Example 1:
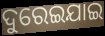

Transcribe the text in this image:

ଦୁରେଇଯାଇ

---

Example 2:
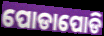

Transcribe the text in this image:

ପୋଡାପୋଡି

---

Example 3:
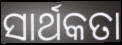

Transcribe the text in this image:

ସାର୍ଥକତା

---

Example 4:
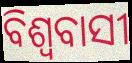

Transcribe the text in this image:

ବିଶ୍ୱବାସୀ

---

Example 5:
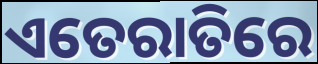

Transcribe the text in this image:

ଏତେରାତିରେ